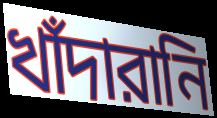
খাঁদারানি